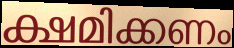
ക്ഷമിക്കണം